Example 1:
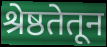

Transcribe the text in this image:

श्रेष्ठतेतून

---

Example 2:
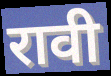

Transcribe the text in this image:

रावी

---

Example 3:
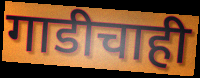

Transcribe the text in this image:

गाडीचाही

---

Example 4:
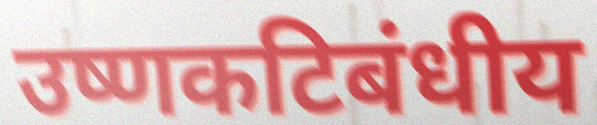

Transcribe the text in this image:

उष्णकटिबंधीय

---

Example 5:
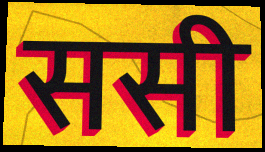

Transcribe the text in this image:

ससी